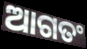
ଆଗତଂ